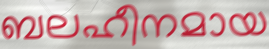
ബലഹീനമായ